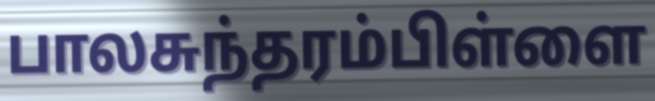
பாலசுந்தரம்பிள்ளை